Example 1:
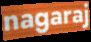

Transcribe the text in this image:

nagaraj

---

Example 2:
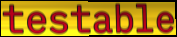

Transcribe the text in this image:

testable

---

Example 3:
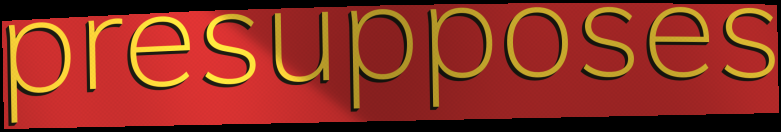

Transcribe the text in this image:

presupposes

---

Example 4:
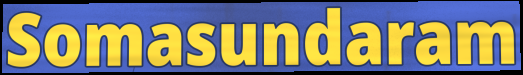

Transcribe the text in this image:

Somasundaram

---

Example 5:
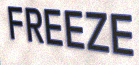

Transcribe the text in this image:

FREEZE